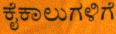
ಕೈಕಾಲುಗಳಿಗೆ